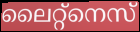
ലൈറ്റ്നെസ്